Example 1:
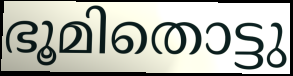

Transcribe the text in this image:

ഭൂമിതൊട്ടു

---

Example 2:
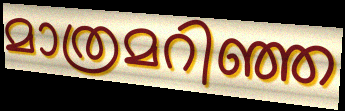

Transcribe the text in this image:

മാത്രമറിഞ്ഞ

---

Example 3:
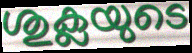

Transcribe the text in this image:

ശുക്ലയുടെ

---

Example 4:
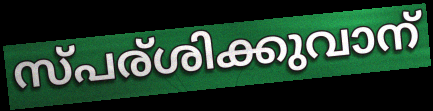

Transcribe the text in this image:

സ്പര്ശിക്കുവാന്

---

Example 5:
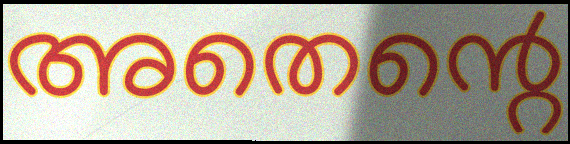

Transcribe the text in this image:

അതെന്റെ